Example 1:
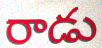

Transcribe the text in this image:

రాడు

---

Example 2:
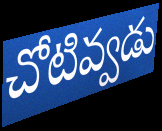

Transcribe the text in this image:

చోటివ్వడు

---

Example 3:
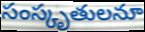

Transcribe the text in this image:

సంస్కృతులనూ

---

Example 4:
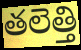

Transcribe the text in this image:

తలెత్తి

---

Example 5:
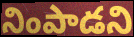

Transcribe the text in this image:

నింపాడని